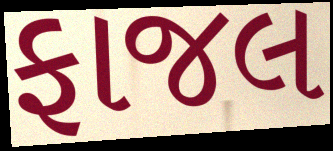
ફાજલ